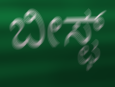
ಬೀಸ್ಟ್